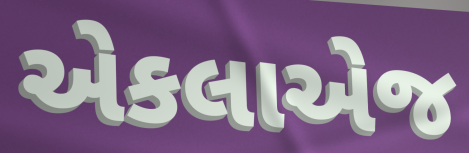
એકલાએજ